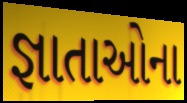
જ્ઞાતાઓના